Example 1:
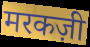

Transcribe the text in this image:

मरकज़ी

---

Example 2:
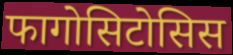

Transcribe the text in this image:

फागोसिटोसिस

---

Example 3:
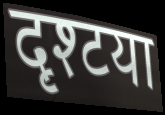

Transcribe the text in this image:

दृश्टया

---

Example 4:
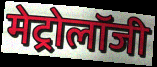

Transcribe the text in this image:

मेट्रोलॉजी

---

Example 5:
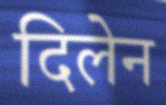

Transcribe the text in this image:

दिलेन